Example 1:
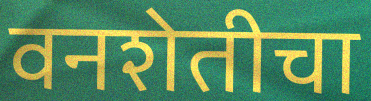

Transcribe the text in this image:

वनशेतीचा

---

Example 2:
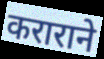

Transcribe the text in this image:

कराराने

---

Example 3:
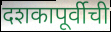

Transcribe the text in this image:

दशकापूर्वीची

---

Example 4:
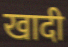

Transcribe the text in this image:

खादी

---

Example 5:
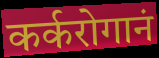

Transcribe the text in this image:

कर्करोगानं